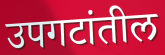
उपगटांतील